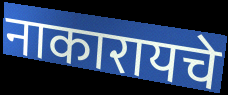
नाकारायचे